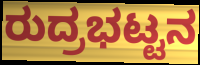
ರುದ್ರಭಟ್ಟನ